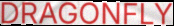
DRAGONFLY